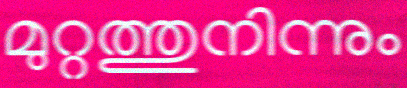
മുറ്റത്തുനിന്നും